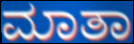
ಮಾತಾ